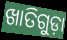
ଖାତିଗୁଡ଼ା